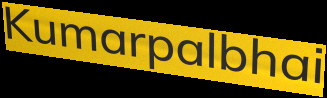
Kumarpalbhai